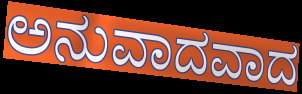
ಅನುವಾದವಾದ